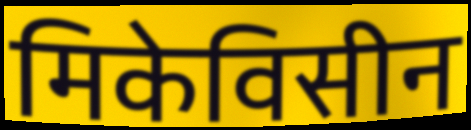
मिकेविसीन